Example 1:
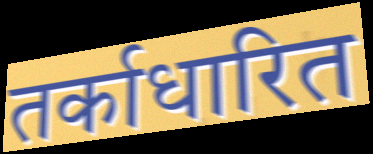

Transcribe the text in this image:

तर्काधारित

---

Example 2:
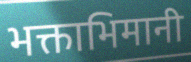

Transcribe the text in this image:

भक्ताभिमानी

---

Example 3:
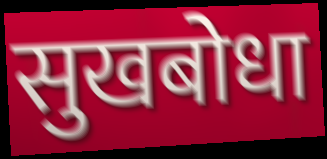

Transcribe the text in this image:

सुखबोधा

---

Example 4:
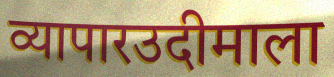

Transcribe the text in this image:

व्यापारउदीमाला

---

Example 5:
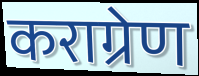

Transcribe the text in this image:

कराग्रेण